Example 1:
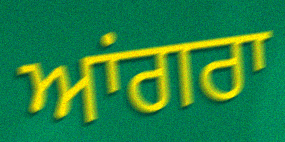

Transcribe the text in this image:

ਆਂਗਰਾ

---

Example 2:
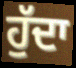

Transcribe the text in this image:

ਹੁੱਦਾ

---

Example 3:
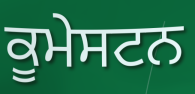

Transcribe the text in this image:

ਕੂਮੇਸਟਨ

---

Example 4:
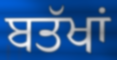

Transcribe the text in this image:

ਬਤੱਖਾਂ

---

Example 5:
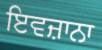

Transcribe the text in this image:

ਇਵਜ਼ਾਨਾ